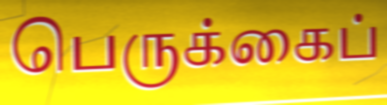
பெருக்கைப்